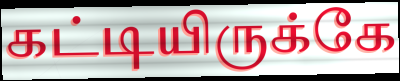
கட்டியிருக்கே